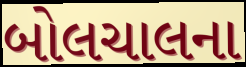
બોલચાલના